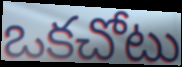
ఒకచోటు